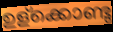
ഉള്ക്കൊണ്ടു